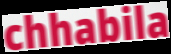
chhabila